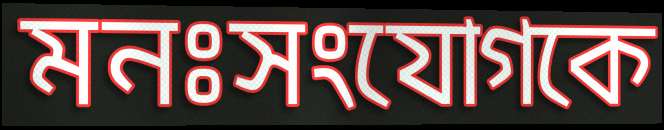
মনঃসংযোগকে